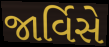
જાર્વિસે